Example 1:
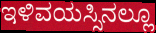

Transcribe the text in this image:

ಇಳಿವಯಸ್ಸಿನಲ್ಲೂ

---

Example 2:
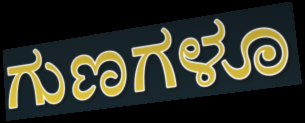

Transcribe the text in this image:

ಗುಣಗಳೂ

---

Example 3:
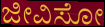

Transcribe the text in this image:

ಜೀವಿಸೋ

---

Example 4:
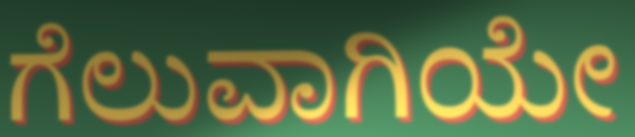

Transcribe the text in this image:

ಗೆಲುವಾಗಿಯೇ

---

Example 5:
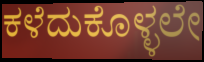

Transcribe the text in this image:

ಕಳೆದುಕೊಳ್ಳಲೇ